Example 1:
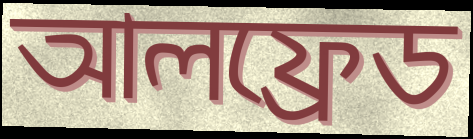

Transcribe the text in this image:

আলফ্ৰেড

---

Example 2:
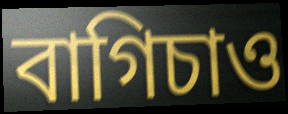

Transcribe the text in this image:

বাগিচাও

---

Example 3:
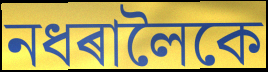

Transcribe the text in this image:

নধৰালৈকে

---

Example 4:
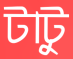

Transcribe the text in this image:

টাটু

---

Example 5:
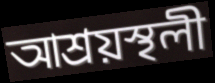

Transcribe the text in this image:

আশ্ৰয়স্থলী